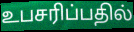
உபசரிப்பதில்